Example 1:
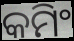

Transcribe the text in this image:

କମିଂ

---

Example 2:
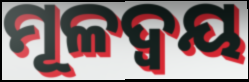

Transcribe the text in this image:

ମୂଳଦ୍ଵୟ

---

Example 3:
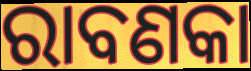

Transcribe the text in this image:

ରାବଣକା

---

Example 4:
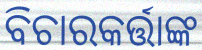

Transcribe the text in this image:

ବିଚାରକର୍ତ୍ତାଙ୍କ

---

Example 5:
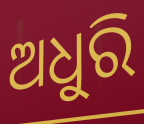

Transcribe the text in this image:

ଅଧୁରି